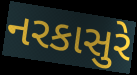
નરકાસુરે